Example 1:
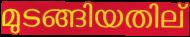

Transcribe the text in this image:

മുടങ്ങിയതില്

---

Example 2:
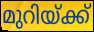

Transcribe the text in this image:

മുറിയ്ക്ക്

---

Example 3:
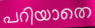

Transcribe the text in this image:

പറിയാതെ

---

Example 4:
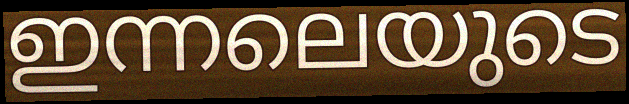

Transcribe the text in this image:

ഇന്നലെയുടെ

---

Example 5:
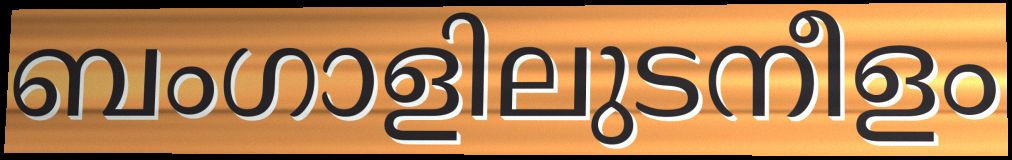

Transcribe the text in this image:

ബംഗാളിലുടനീളം